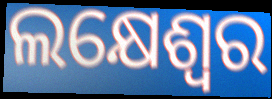
ଲକ୍ଷେଶ୍ଵର